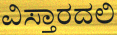
ವಿಸ್ತಾರದಲಿ